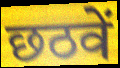
छठवें